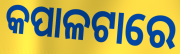
କପାଳଟାରେ